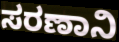
ಸರಣಾನಿ